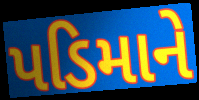
પડિમાને